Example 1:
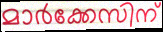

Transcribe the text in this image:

മാർക്കേസിന്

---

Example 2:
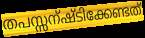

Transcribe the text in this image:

തപസ്സന്ഷ്ടിക്കേണ്ടത്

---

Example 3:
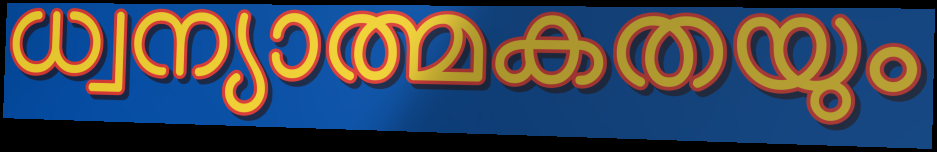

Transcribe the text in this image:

ധ്വന്യാത്മകതയും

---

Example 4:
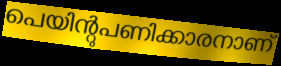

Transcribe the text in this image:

പെയിന്റുപണിക്കാരനാണ്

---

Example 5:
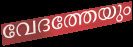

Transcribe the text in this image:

വേദത്തേയും